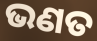
ଭଣତ